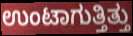
ಉಂಟಾಗುತ್ತಿತ್ತು